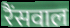
रैंसवाल